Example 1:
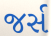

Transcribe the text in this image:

જર્સ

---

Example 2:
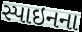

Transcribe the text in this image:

સ્પાઇનના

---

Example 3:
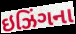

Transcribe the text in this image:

ઇઝિંગના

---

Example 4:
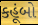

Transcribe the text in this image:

કહૂંબો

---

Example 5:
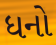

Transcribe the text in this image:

ધનો